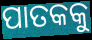
ପାତକକୁ